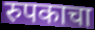
रुपकाचा